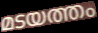
മടയത്തം